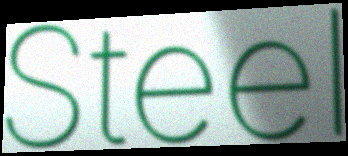
Steel